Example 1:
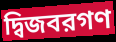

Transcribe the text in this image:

দ্বিজবরগণ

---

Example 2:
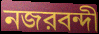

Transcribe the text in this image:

নজরবন্দী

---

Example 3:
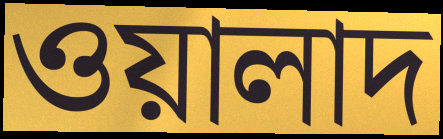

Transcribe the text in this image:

ওয়ালাদ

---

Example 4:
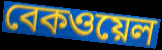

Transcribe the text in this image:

বেকওয়েল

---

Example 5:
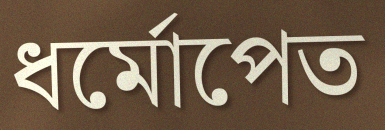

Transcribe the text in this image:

ধর্মোপেত